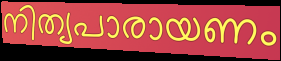
നിത്യപാരായണം